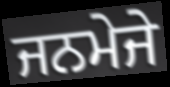
ਜਨਮੇਜੇ